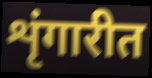
शृंगारीत